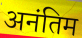
अनंतिम